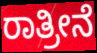
ರಾತ್ರೀನೆ